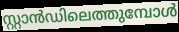
സ്റ്റാൻഡിലെത്തുമ്പോൾ